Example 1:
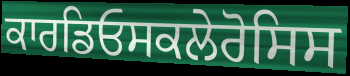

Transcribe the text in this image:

ਕਾਰਡਿਓਸਕਲੇਰੋਸਿਸ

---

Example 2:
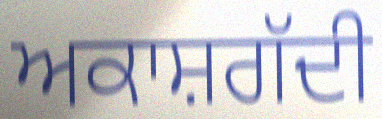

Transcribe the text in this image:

ਅਕਾਸ਼ਗੱਦੀ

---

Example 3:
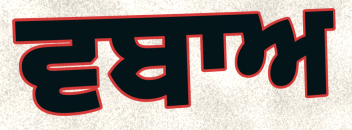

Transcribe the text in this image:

ਵਬਾਅ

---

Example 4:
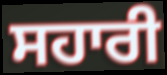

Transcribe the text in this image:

ਸਹਾਰੀ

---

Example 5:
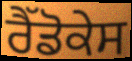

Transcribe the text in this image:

ਰੈੱਡੋਕੇਸ